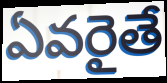
ఏవరైతే